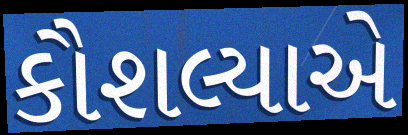
કૌશલ્યાએ